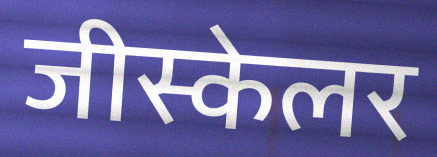
जीस्केलर